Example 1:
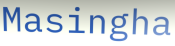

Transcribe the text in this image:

Masingha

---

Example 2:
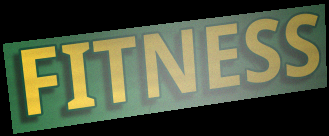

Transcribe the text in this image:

FITNESS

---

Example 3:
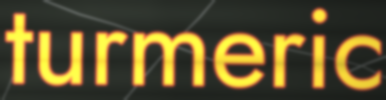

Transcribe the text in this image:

turmeric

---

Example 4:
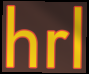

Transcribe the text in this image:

hrl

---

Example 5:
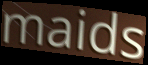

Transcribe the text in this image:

maids